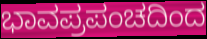
ಭಾವಪ್ರಪಂಚದಿಂದ